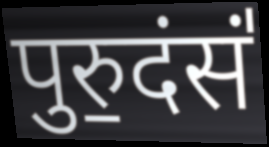
पुरु॒दंसं॑